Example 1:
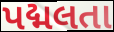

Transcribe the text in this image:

પદ્મલતા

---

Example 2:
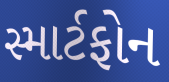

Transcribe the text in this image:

સ્માર્ટફોન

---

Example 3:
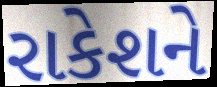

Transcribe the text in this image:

રાકેશને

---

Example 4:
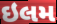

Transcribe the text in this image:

ઇલમ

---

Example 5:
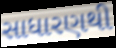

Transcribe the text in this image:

સાધારણથી